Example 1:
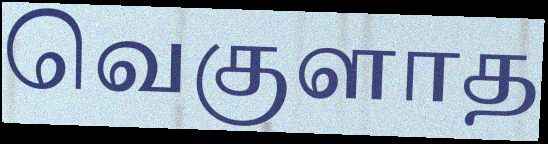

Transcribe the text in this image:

வெகுளாத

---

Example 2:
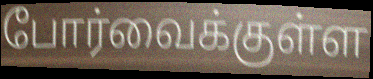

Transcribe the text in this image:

போர்வைக்குள்ள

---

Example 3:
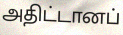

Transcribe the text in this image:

அதிட்டானப்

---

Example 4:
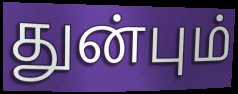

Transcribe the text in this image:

துன்பும்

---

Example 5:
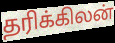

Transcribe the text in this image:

தரிக்கிலன்